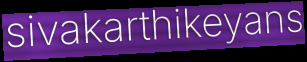
sivakarthikeyans